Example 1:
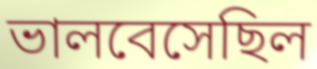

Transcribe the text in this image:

ভালবেসেছিল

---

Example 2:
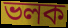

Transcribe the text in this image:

ভলক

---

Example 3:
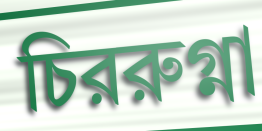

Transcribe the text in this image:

চিররুগ্না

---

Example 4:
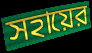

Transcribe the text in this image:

সহায়ের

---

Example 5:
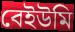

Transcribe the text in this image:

বেইউমি